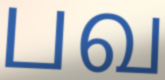
பவ